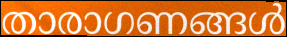
താരാഗണങ്ങൾ